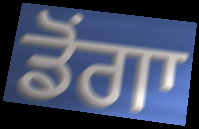
ਡੋਂਗਾ